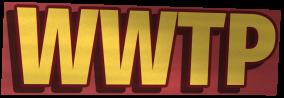
WWTP